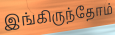
இங்கிருந்தோம்